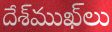
దేశ్‌ముఖ్‌లు